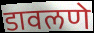
डावलणे